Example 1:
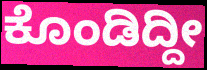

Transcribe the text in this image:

ಕೊಂಡಿದ್ದೀ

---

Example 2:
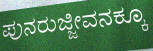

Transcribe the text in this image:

ಪುನರುಜ್ಜೀವನಕ್ಕೂ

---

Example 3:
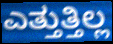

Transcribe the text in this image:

ಎತ್ತುತ್ತಿಲ್ಲ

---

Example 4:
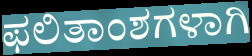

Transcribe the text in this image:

ಫಲಿತಾಂಶಗಳಾಗಿ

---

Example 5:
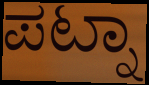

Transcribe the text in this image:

ಪಟ್ನಾ